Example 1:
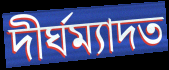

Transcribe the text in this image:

দীৰ্ঘম্যাদত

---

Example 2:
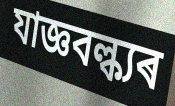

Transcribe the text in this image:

যাজ্ঞবল্ক্যৰ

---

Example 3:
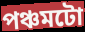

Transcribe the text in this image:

পঞ্চমটো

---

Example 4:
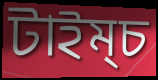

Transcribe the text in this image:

টাইম্‌চ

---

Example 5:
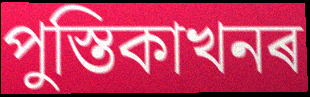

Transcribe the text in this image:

পুস্তিকাখনৰ